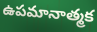
ఉపమానాత్మక